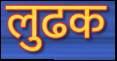
लुढक